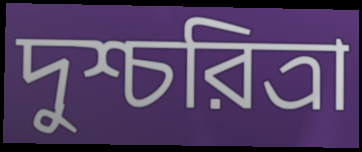
দুশ্চরিত্রা